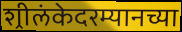
श्रीलंकेदरम्यानच्या